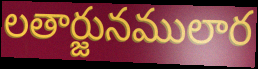
లతార్జునములార